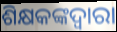
ଶିକ୍ଷକଙ୍କଦ୍ଵାରା